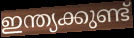
ഇന്ത്യക്കുണ്ട്